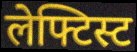
लेफ्टिस्ट